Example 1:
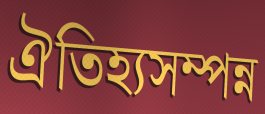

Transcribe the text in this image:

ঐতিহ্যসম্পন্ন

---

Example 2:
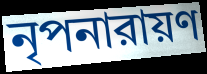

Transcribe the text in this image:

নৃপনারায়ণ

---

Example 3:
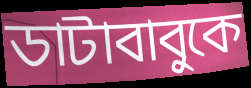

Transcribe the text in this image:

ডাটাবাবুকে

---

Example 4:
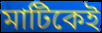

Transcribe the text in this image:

মাটিকেই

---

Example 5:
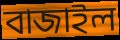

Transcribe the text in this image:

বাজাইল